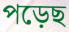
পড়েছ